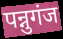
पन्नुगंज